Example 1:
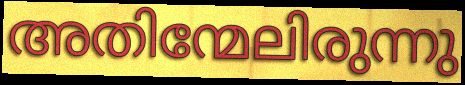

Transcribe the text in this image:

അതിന്മേലിരുന്നു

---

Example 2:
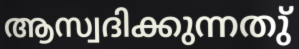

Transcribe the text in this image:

ആസ്വദിക്കുന്നതു്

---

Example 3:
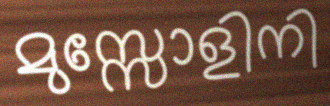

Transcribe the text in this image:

മുസ്സോളിനി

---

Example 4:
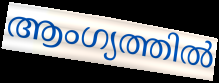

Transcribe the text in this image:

ആംഗ്യത്തിൽ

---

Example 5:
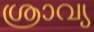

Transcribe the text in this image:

ശ്രാവ്യ